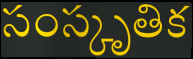
సంస్కృతిక